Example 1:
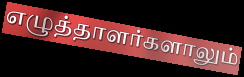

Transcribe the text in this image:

எழுத்தாளர்களாலும்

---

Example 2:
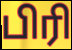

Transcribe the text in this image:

பிரி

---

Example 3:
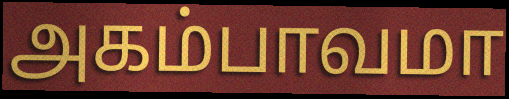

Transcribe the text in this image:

அகம்பாவமா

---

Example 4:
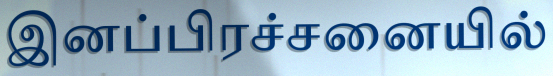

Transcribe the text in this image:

இனப்பிரச்சனையில்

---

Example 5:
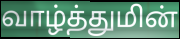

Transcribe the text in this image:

வாழ்த்துமின்